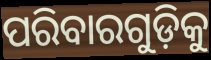
ପରିବାରଗୁଡ଼ିକୁ